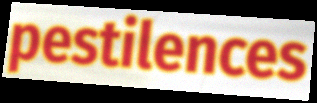
pestilences